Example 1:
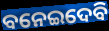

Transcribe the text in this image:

ବନେଇଦେବି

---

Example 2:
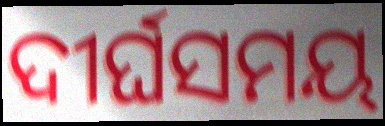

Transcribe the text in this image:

ଦୀର୍ଘସମୟ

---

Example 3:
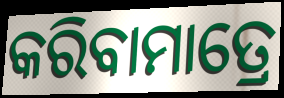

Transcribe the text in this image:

କରିବାମାତ୍ରେ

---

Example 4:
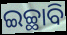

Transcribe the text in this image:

ଇଚ୍ଛାବି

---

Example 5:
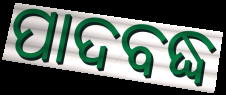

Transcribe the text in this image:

ପାଦବଦ୍ଧ